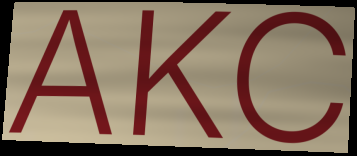
AKC